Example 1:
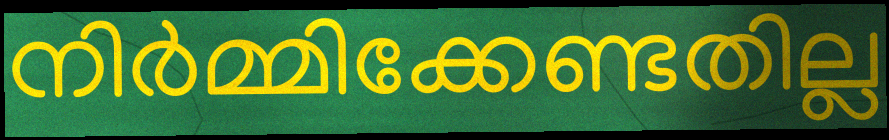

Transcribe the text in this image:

നിർമ്മിക്കേണ്ടതില്ല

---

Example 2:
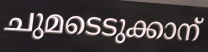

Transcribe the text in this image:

ചുമടെടുക്കാന്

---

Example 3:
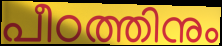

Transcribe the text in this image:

പീഠത്തിനും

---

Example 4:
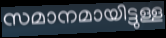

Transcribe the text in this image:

സമാനമായിട്ടുള്ള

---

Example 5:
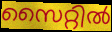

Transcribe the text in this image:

സൈറ്റിൽ